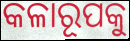
କଳାରୂପକୁ